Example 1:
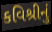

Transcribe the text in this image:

કવિશ્રીનું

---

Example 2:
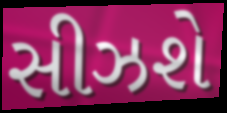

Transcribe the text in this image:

સીઝશે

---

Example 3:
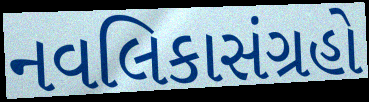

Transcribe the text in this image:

નવલિકાસંગ્રહો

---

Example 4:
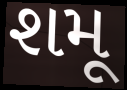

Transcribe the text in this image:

શમૂ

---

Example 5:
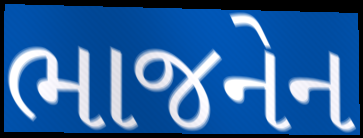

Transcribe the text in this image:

ભાજનેન